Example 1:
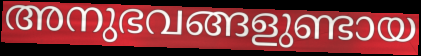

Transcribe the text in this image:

അനുഭവങ്ങളുണ്ടായ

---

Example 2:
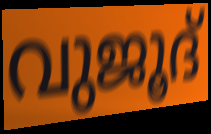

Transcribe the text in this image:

വുജൂദ്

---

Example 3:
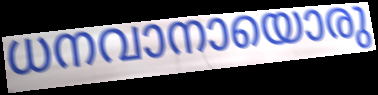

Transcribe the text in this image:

ധനവാനായൊരു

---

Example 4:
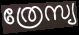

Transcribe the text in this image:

ത്രേസ്യ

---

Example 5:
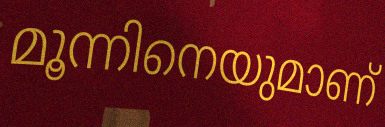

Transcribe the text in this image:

മൂന്നിനെയുമാണ്